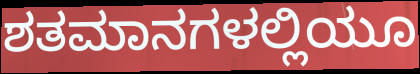
ಶತಮಾನಗಳಲ್ಲಿಯೂ